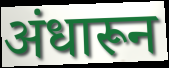
अंधारून